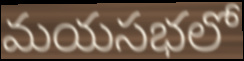
మయసభలో